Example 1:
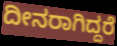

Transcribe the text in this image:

ದೀನರಾಗಿದ್ದರೆ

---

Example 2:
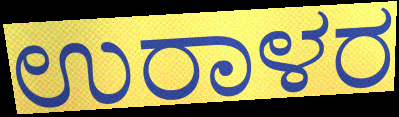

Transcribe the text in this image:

ಉರಾಳರ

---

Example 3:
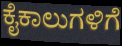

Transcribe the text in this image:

ಕೈಕಾಲುಗಳಿಗೆ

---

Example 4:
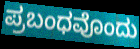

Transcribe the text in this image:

ಪ್ರಬಂಧವೊಂದು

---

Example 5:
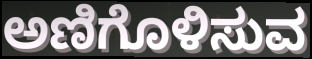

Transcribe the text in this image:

ಅಣಿಗೊಳಿಸುವ